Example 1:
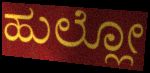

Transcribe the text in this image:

ಹುಲ್ಲೋ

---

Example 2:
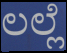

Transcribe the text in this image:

ಲಲ್ಲೆ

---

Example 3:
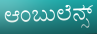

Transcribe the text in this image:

ಆಂಬುಲೆನ್ಸ್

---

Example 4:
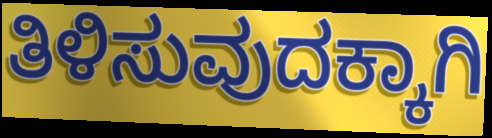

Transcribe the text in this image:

ತಿಳಿಸುವುದಕ್ಕಾಗಿ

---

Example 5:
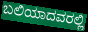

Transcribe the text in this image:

ಬಲಿಯಾದವರಲ್ಲಿ